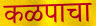
कळपाचा